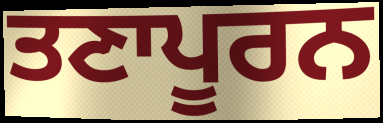
ਤਣਾਪੂਰਨ